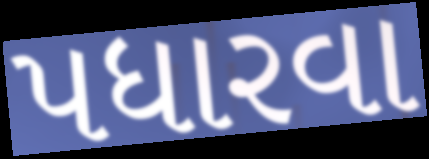
પધારવા